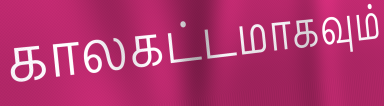
காலகட்டமாகவும்